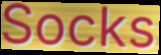
Socks